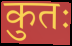
कुतः